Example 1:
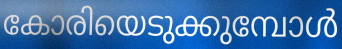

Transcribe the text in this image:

കോരിയെടുക്കുമ്പോൾ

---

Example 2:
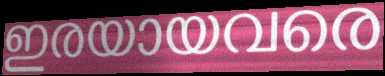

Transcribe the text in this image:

ഇരയായവരെ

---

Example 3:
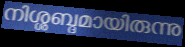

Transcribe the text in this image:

നിശ്ശബ്ദമായിരുന്നു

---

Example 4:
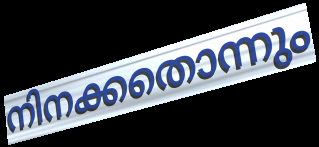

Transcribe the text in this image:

നിനക്കതൊന്നും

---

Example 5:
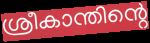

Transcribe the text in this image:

ശ്രീകാന്തിന്റെ